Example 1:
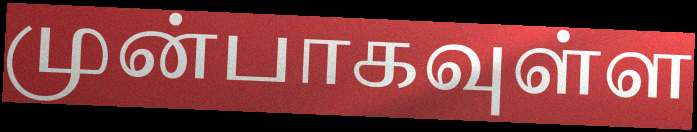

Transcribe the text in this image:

முன்பாகவுள்ள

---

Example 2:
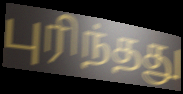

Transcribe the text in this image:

புரிந்தது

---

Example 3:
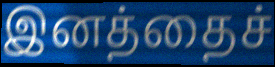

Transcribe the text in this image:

இனத்தைச்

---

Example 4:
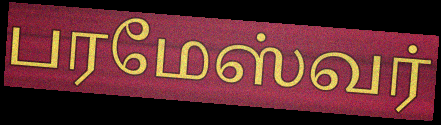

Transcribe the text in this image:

பரமேஸ்வர்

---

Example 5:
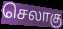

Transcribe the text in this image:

செலாகு